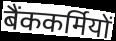
बैंककर्मियों